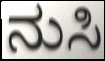
ನುಸಿ